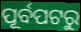
ପୂର୍ବପଟରୁ